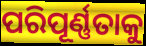
ପରିପୂର୍ଣ୍ଣତାକୁ